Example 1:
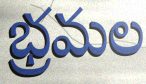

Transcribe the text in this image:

భ్రమల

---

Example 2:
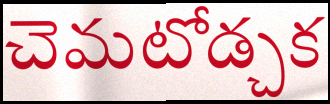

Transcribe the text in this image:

చెమటోడ్చక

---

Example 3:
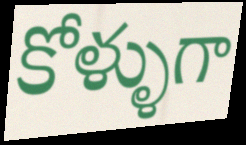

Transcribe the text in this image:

కోళ్ళుగా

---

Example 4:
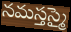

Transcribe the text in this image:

నమస్తస్మై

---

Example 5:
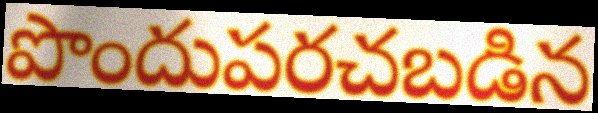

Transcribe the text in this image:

పొందుపరచబడిన